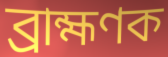
ব্ৰাহ্মণক